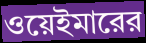
ওয়েইমারের